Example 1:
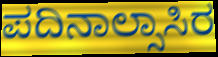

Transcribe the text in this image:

ಪದಿನಾಲ್ಸಾಸಿರ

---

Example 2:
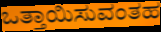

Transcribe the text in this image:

ಒತ್ತಾಯಿಸುವಂತಹ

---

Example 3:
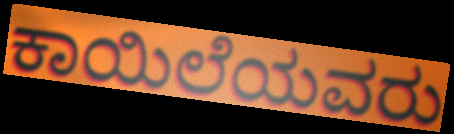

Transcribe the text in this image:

ಕಾಯಿಲೆಯವರು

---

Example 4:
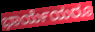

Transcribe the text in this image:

ಭಾರ್ಯೆಯರೂ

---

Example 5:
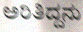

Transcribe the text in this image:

ಅರಿತಿದ್ದನು